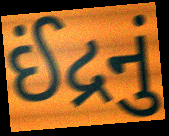
ઈંદ્રનું